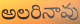
అలరినావు